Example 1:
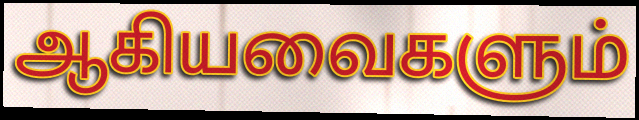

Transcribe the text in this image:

ஆகியவைகளும்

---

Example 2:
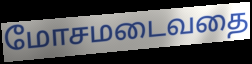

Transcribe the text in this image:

மோசமடைவதை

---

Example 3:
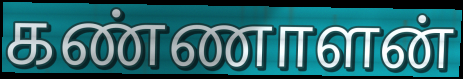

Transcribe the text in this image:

கண்ணாளன்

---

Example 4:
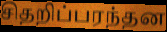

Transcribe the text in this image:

சிதறிப்பரந்தன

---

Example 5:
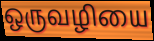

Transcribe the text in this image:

ஒருவழியை